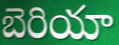
బెరియా